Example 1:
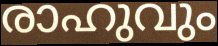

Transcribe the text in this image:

രാഹുവും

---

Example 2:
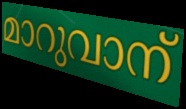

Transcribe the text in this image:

മാറുവാന്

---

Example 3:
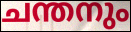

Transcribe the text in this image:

ചന്തനും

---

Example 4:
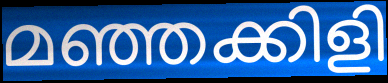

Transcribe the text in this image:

മഞ്ഞക്കിളി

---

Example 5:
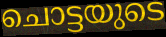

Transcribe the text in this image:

ചൊട്ടയുടെ